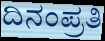
ದಿನಂಪ್ರತಿ